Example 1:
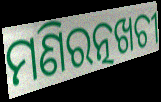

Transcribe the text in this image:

ମଣିରତ୍ନଖଚୀ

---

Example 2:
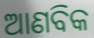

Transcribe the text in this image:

ଆଣବିକ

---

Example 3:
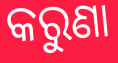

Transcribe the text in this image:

କରୁଣା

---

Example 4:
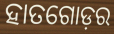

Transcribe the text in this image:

ହାତଗୋଡ଼ର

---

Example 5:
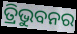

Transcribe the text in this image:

ତ୍ରିଭୁବନର